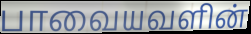
பாவையவளின்